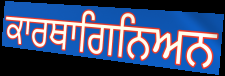
ਕਾਰਥਾਗਿਨਿਅਨ